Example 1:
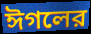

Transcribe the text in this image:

ঈগলের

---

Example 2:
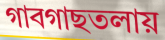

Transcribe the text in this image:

গাবগাছতলায়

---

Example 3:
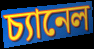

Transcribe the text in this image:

চ্যানেল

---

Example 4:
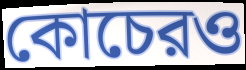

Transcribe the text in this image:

কোচেরও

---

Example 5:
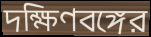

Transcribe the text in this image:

দক্ষিণবঙ্গের